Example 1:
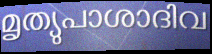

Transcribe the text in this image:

മൃത്യുപാശാദിവ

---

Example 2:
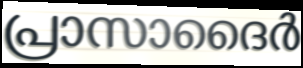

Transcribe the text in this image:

പ്രാസാദൈർ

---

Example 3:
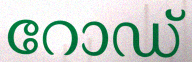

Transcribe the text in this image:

റോഡ്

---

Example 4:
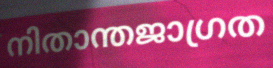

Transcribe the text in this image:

നിതാന്തജാഗ്രത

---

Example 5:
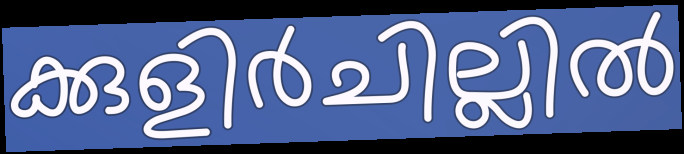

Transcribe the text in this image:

ക്കുളിർചില്ലിൽ